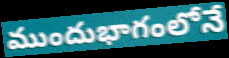
ముందుభాగంలోనే